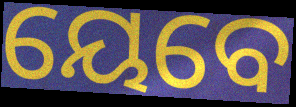
ୟେବେ